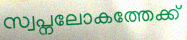
സ്വപ്നലോകത്തേക്ക്